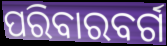
ପରିବାରବର୍ଗ